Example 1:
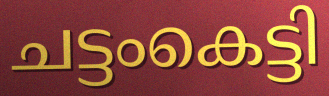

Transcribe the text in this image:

ചട്ടംകെട്ടി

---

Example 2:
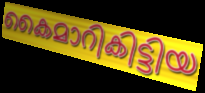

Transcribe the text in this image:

കൈമാറികിട്ടിയ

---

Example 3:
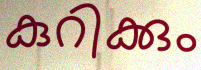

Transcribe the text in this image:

കുറിക്കും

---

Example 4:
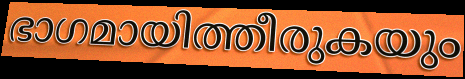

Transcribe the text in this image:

ഭാഗമായിത്തീരുകയും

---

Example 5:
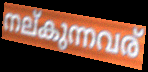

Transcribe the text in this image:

നല്കുന്നവര്